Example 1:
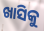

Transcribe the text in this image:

ଖାସିକୁ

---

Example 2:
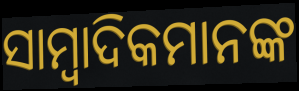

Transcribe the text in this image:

ସାମ୍ବାଦିକମାନଙ୍କ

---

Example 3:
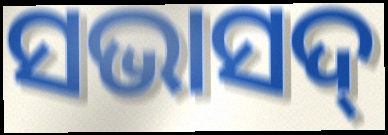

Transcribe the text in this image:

ସଭାସଦ୍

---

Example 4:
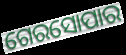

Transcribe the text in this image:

ଗେରସୋପାର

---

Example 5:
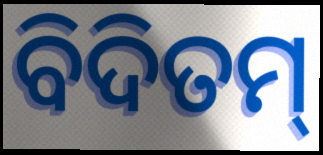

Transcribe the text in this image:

ବିଦିତମ୍